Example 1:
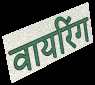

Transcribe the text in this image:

वायरिंग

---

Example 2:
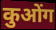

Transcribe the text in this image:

कुओंग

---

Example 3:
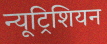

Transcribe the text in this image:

न्यूट्रिशियन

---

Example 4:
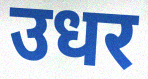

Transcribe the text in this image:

उधर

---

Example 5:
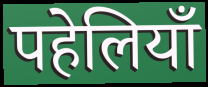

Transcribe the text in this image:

पहेलियाँ